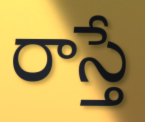
రాస్తే